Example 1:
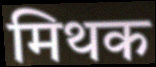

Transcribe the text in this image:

मिथक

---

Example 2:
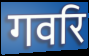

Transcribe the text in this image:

गवरि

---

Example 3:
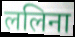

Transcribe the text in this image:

ललिना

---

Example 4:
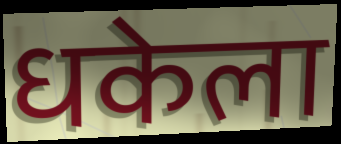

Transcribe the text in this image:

धकेला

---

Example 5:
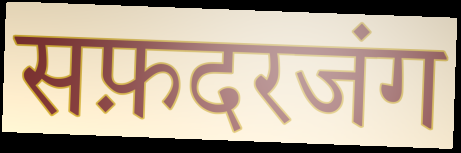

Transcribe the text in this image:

सफ़दरजंग